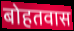
बोहतवास